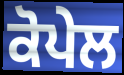
ਕੋਪੇਲ